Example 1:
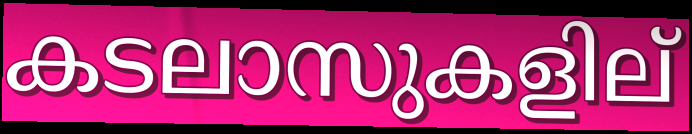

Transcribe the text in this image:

കടലാസുകളില്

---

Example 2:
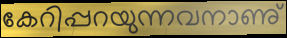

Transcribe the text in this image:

കേറിപ്പറയുന്നവനാണു്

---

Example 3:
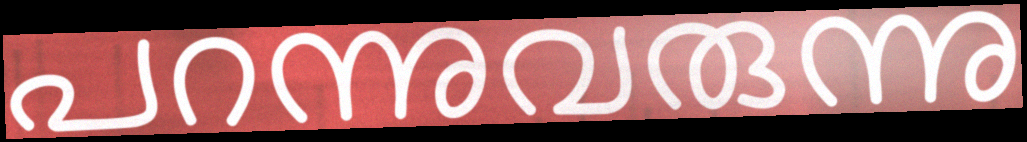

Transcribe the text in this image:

പറന്നുവരുന്നു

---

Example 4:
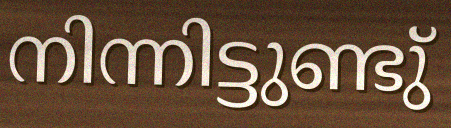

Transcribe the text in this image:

നിന്നിട്ടുണ്ടു്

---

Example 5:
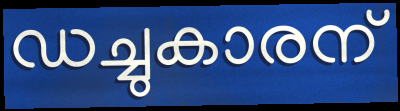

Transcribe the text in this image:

ഡച്ചുകാരന്